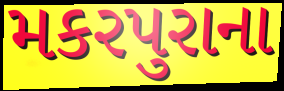
મકરપુરાના